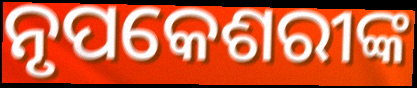
ନୃପକେଶରୀଙ୍କ